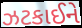
ઝટકાઈને